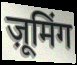
ज़ूमिंग